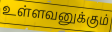
உள்ளவனுக்கும்